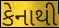
કેનાથી